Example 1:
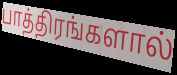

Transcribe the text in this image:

பாத்திரங்களால்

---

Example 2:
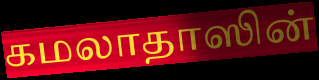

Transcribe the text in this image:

கமலாதாஸின்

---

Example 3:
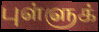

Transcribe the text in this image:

புள்ளுக்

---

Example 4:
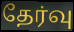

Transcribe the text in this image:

தேர்வு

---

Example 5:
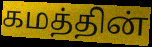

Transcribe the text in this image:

கமத்தின்